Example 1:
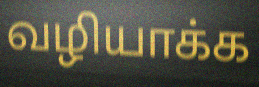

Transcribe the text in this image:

வழியாக்க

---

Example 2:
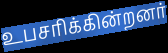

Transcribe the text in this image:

உபசரிக்கின்றனர்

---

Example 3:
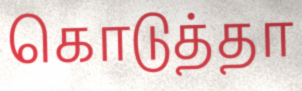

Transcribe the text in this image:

கொடுத்தா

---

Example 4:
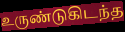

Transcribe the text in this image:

உருண்டுகிடந்த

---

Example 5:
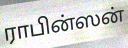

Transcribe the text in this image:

ராபின்ஸன்